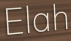
Elah